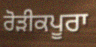
ਰੋੜੀਕਪੂਰਾ